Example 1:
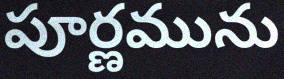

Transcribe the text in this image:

పూర్ణమును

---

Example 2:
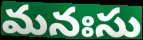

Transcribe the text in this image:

మనఃసు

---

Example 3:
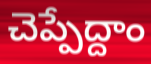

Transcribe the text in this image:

చెప్పేద్దాం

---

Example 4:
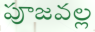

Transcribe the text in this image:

పూజవల్ల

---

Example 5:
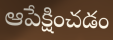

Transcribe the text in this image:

ఆపేక్షించడం